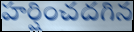
హర్షించదగిన